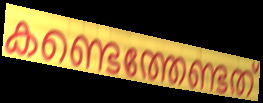
കണ്ടെത്തേണ്ടത്